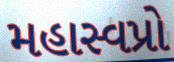
મહાસ્વપ્રો